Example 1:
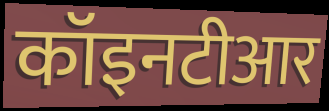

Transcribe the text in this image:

कॉइनटीआर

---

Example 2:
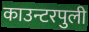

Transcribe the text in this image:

काउन्टरपुली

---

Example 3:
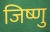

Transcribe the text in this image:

जिष्णु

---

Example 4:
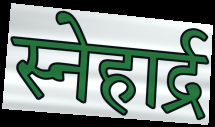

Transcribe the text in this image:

स्नेहार्द्र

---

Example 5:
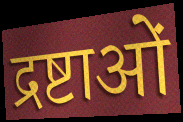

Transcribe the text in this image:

द्रष्टाओं